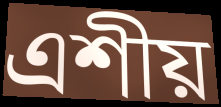
এশীয়